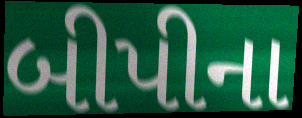
બીપીના